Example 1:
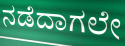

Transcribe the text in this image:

ನಡೆದಾಗಲೇ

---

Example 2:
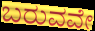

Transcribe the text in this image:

ಬರುವವೇ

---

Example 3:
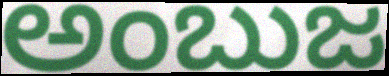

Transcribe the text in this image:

ಅಂಬುಜ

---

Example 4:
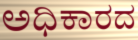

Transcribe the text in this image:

ಅಧಿಕಾರದ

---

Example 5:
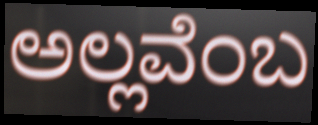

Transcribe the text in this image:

ಅಲ್ಲವೆಂಬ